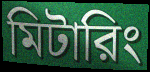
মিটারিং